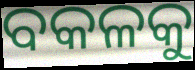
ବକଳକୁ